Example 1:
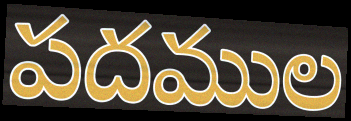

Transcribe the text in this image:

పదముల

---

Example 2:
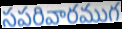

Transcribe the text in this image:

సపరివారముగ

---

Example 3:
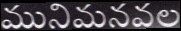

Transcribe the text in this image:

మునిమనవల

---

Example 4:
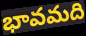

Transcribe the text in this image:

భావమది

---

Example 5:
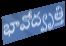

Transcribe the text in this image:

భావోద్వృత్తి